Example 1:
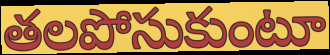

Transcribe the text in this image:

తలపోసుకుంటూ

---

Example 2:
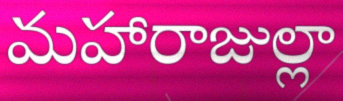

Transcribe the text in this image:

మహారాజుల్లా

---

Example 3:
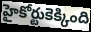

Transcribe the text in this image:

హైకోర్టుకెక్కింది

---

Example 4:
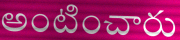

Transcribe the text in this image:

అంటించారు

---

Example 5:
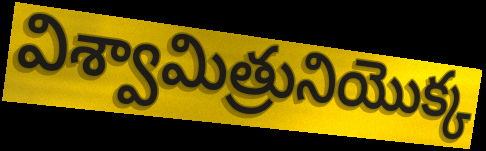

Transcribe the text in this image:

విశ్వామిత్రునియొక్క